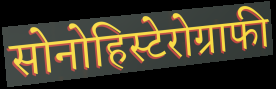
सोनोहिस्टेरोग्राफी